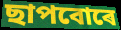
ছাপবোৰে